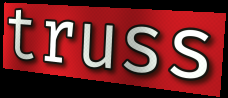
truss